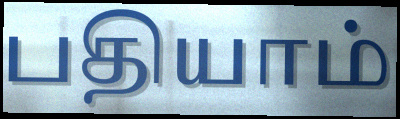
பதியாம்